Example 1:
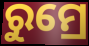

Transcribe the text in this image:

ରୁମ୍ରେ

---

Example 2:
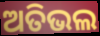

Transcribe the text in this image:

ଅତିଭଲ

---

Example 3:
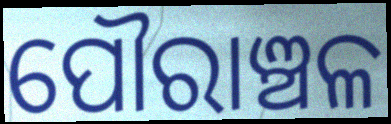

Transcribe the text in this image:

ପୌରାଞ୍ଚଳ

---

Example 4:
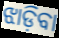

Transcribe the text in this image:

ଝାଡ଼ିବା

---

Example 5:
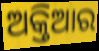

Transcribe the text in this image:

ଅକ୍ତିଆର